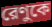
রেণুকে